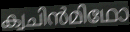
ക്വചിൻമിഥോ